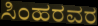
ಸಿಂಹರವರ